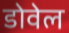
डोवेल